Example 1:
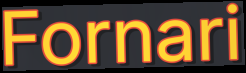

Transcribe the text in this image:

Fornari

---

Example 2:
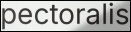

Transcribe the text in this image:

pectoralis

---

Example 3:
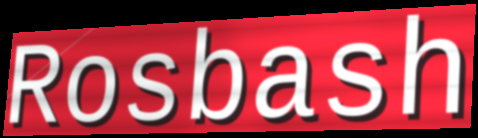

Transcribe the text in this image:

Rosbash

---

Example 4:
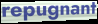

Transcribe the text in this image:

repugnant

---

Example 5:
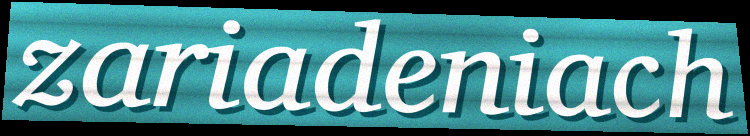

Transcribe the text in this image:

zariadeniach